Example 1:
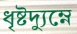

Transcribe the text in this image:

ধৃষ্টদ্যুম্নে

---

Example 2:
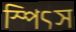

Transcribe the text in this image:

স্পিৎস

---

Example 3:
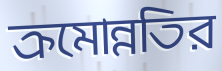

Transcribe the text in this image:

ক্রমোন্নতির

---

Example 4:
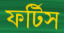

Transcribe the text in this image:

ফর্টিস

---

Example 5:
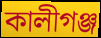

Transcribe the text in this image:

কালীগঞ্জ